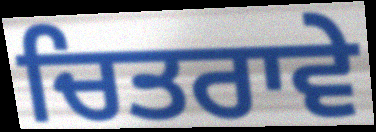
ਚਿਤਰਾਵੇ